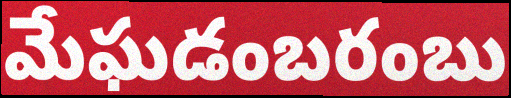
మేఘడంబరంబు